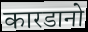
कारडानो